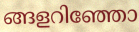
ങ്ങളറിഞ്ഞോ